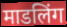
माडलिंग